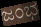
ಜಂಭ